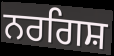
ਨਰਗਿਸ਼